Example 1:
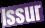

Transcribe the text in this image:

Issur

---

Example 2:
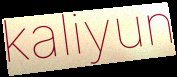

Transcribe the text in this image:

kaliyun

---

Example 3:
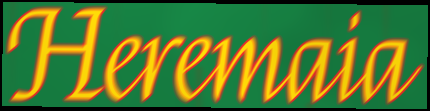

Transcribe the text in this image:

Heremaia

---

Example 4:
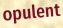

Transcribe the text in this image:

opulent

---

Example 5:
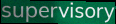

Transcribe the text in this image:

supervisory